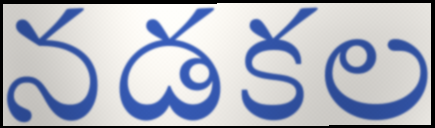
నడకల